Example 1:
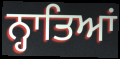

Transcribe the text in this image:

ਨ੍ਹਾਤਿਆਂ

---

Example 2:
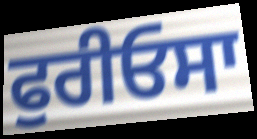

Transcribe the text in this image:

ਫੁਰੀਓਸਾ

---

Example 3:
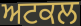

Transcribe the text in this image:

ਅਟਕਲ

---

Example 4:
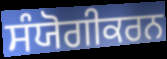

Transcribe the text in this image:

ਸੰਯੋਗੀਕਰਨ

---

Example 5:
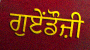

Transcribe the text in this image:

ਗੁਏਂਡੌਜ਼ੀ